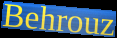
Behrouz